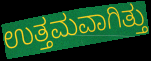
ಉತ್ತಮವಾಗಿತ್ತು